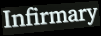
Infirmary